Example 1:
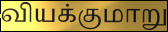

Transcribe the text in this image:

வியக்குமாறு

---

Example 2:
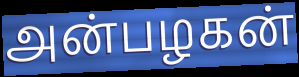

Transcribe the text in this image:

அன்பழகன்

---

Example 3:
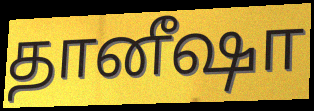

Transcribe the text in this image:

தானீஷா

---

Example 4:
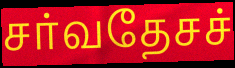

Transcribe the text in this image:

சர்வதேசச்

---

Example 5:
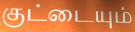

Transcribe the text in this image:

குட்டையும்